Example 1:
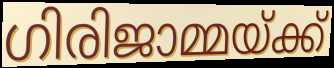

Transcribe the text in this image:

ഗിരിജാമ്മയ്ക്ക്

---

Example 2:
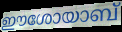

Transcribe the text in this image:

ഈശോയാബ്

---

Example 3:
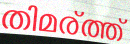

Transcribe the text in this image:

തിമര്ത്ത്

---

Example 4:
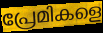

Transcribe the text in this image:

പ്രേമികളെ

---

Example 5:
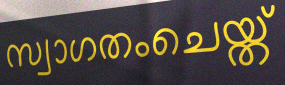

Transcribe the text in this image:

സ്വാഗതംചെയ്ത്